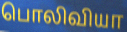
பொலிவியா